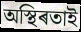
অস্থিৰতাই